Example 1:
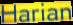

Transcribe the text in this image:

Harian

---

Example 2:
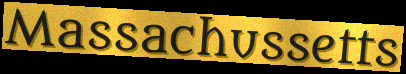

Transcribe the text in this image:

Massachussetts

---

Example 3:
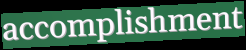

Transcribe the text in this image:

accomplishment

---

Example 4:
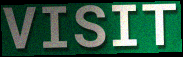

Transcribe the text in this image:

VISIT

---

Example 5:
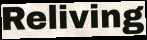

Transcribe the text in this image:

Reliving